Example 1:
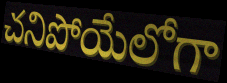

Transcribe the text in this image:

చనిపోయేలోగా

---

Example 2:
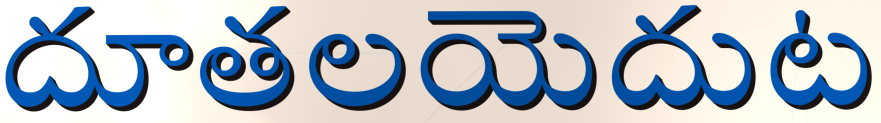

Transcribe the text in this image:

దూతలయెదుట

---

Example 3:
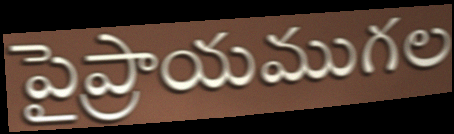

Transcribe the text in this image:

పైప్రాయముగల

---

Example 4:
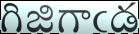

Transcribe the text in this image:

గిజిగాఁడ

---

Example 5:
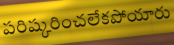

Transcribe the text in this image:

పరిష్కరించలేకపోయారు